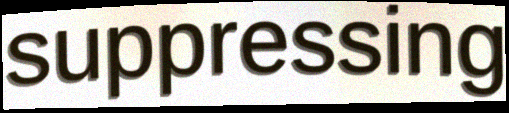
suppressing